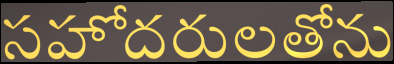
సహోదరులతోను